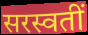
सरस्वतीं